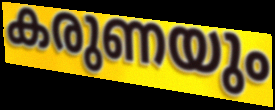
കരുണയും